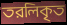
তরলিকৃত